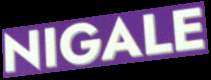
NIGALE